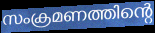
സംക്രമണത്തിന്റെ